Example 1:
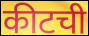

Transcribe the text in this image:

कीटची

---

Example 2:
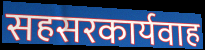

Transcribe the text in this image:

सहसरकार्यवाह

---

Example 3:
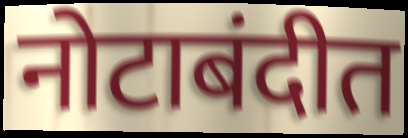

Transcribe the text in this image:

नोटाबंदीत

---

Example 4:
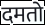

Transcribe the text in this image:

दमतो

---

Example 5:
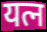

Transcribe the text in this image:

यत्न